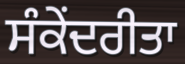
ਸੰਕੇਂਦਰੀਤਾ